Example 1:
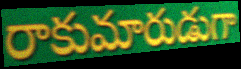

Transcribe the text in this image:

రాకుమారుడుగా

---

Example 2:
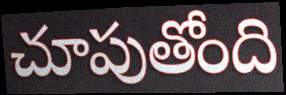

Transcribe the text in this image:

చూపుతోంది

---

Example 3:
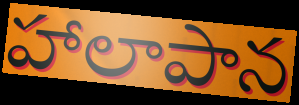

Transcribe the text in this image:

హాలాపాన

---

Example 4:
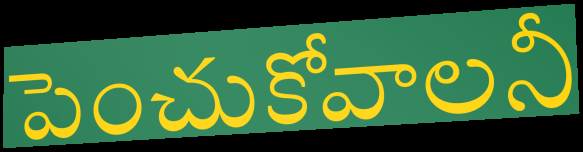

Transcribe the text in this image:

పెంచుకోవాలనీ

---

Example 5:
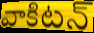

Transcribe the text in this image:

వాకిటన్